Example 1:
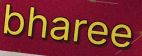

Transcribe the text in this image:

bharee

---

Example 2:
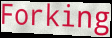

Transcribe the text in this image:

Forking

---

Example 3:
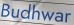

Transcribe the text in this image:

Budhwar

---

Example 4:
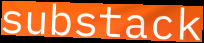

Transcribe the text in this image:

substack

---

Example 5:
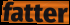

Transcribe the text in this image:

fatter